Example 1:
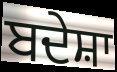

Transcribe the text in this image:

ਬਦੇਸ਼ਾ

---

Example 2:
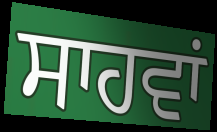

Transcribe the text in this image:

ਸਾਹਵਾਂ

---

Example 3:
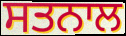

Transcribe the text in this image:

ਸਤਨਾਲ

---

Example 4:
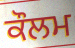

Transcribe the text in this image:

ਕੌਲਮ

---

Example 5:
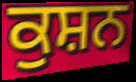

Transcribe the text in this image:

ਕੁਸ਼ਨ